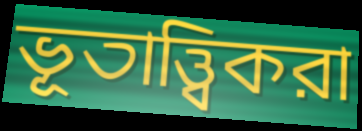
ভূতাত্ত্বিকরা